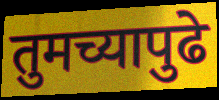
तुमच्यापुढे